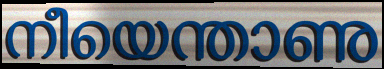
നീയെന്താണു